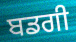
ਬਡਗੀ